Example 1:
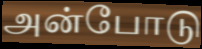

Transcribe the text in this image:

அன்போடு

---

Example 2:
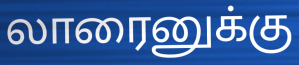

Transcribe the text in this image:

லாரைனுக்கு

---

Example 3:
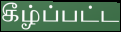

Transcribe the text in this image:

கீழ்ப்பட்ட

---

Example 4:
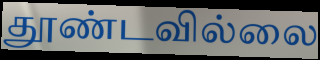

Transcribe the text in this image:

தூண்டவில்லை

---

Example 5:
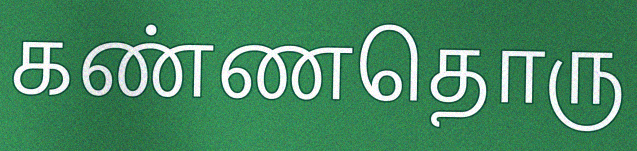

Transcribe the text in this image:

கண்ணதொரு